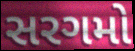
સરગમો